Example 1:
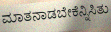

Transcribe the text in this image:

ಮಾತನಾಡಬೇಕೆನ್ನಿಸಿತು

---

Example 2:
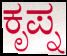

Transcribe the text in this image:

ಕೃಪ್ನ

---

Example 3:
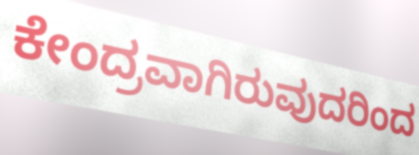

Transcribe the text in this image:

ಕೇಂದ್ರವಾಗಿರುವುದರಿಂದ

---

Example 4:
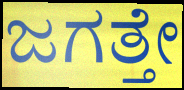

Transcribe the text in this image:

ಜಗತ್ತೇ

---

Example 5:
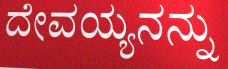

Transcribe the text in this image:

ದೇವಯ್ಯನನ್ನು